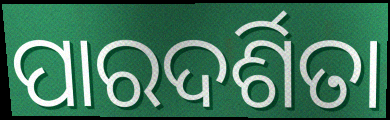
ପାରଦର୍ଶିତା